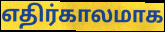
எதிர்காலமாக